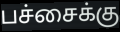
பச்சைக்கு